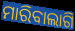
ମାରିବାଲାଗି